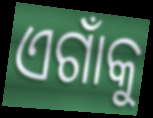
ଏଗାଁକୁ